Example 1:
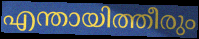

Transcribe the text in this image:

എന്തായിത്തീരും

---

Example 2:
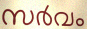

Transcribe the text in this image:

സർവം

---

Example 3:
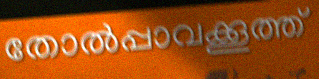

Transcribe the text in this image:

തോൽപ്പാവക്കൂത്ത്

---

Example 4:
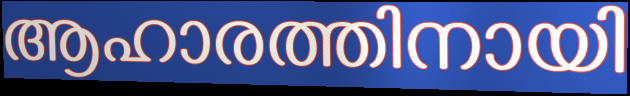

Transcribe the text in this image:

ആഹാരത്തിനായി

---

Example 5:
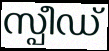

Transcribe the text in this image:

സ്പീഡ്